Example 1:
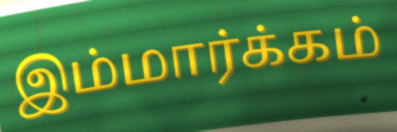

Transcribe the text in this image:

இம்மார்க்கம்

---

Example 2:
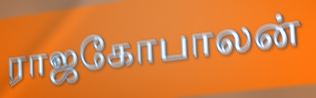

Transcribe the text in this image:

ராஜகோபாலன்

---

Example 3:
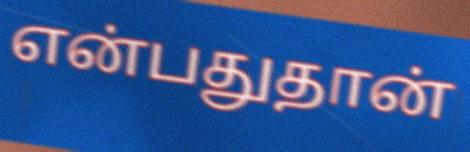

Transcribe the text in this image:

என்பதுதான்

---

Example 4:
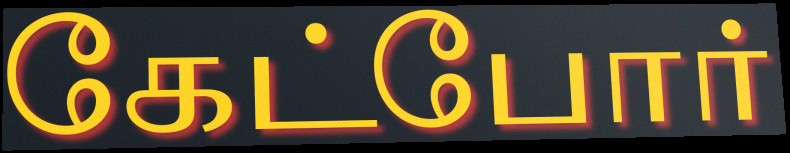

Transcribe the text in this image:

கேட்போர்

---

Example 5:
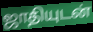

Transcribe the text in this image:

ஜாதியுடன்